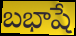
బభాషే